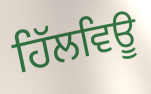
ਹਿੱਲਵਿਊ